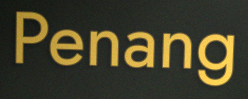
Penang